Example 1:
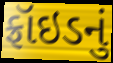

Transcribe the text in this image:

ફ્રૉઇડનું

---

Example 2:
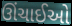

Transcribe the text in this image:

ઊંચાઈઓ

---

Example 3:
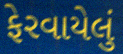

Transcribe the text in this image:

ફેરવાયેલું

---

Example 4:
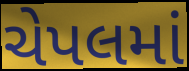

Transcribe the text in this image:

ચેપલમાં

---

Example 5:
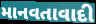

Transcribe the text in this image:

માનવતાવાદી